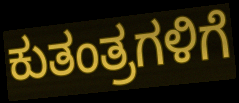
ಕುತಂತ್ರಗಳಿಗೆ